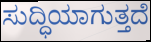
ಸುದ್ಧಿಯಾಗುತ್ತದೆ